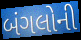
બંગલોની